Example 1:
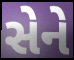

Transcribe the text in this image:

સેને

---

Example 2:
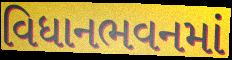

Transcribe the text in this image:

વિધાનભવનમાં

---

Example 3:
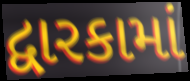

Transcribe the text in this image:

દ્વારકામાં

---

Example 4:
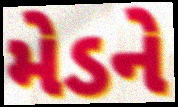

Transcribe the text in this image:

મેડને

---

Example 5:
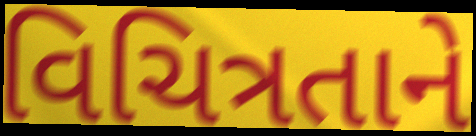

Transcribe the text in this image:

વિચિત્રતાને